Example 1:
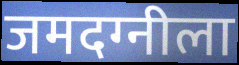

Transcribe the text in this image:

जमदग्नीला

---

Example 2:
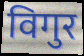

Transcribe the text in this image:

विगुर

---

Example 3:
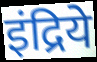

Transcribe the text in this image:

इंद्रिये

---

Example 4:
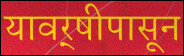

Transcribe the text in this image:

यावर्षीपासून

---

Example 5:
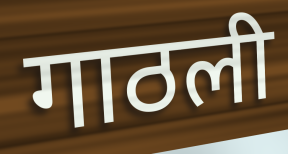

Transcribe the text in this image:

गाठली